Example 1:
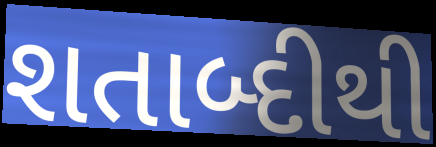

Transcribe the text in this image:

શતાબ્દીથી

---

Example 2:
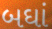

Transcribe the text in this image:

બઘાં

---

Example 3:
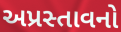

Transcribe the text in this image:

અપ્રસ્તાવનો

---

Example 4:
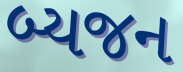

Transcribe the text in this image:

બ્યજન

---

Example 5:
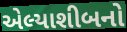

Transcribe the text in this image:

એલ્યાશીબનો